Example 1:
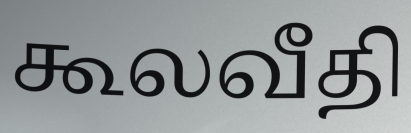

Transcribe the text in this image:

கூலவீதி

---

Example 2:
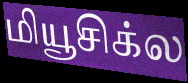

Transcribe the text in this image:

மியூசிக்ல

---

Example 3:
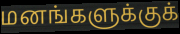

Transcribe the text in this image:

மனங்களுக்குக்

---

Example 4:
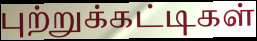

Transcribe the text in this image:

புற்றுக்கட்டிகள்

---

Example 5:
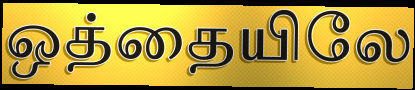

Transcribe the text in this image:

ஒத்தையிலே